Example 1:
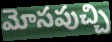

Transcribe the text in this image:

మోసపుచ్చి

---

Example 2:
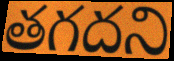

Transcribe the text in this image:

తగదని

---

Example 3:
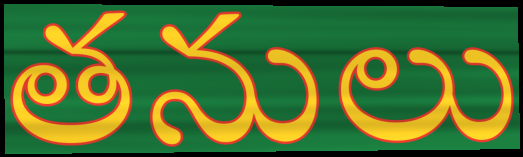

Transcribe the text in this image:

తనులు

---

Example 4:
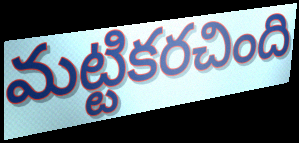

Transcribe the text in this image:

మట్టికరచింది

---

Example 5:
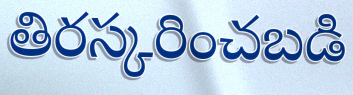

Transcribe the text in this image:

తిరస్కరించబడి